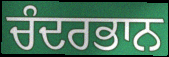
ਚੰਦਰਭਾਨ